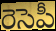
రెసెపీ